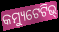
କମ୍ୟୁଟେଟିଭ୍